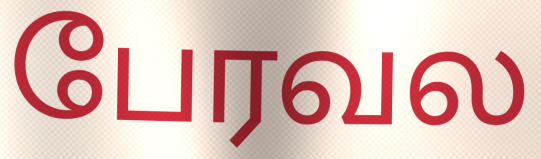
பேரவல